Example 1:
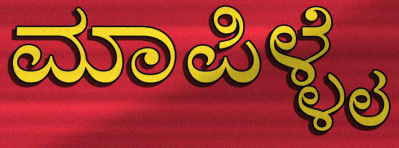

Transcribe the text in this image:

ಮಾಪಿಳ್ಳೈ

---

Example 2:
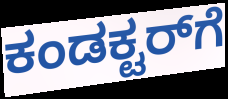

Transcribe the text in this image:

ಕಂಡಕ್ಟರ್‌ಗೆ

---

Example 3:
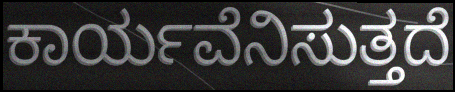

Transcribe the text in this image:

ಕಾರ್ಯವೆನಿಸುತ್ತದೆ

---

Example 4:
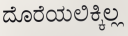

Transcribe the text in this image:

ದೊರೆಯಲಿಕ್ಕಿಲ್ಲ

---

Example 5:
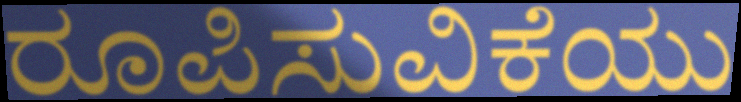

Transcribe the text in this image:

ರೂಪಿಸುವಿಕೆಯು